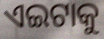
ଏଇଟାକୁ